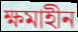
ক্ষমাহীন